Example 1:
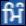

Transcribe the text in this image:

ਮਿੰ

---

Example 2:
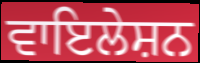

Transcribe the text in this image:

ਵਾਇਲੇਸ਼ਨ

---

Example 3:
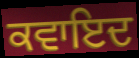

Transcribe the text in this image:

ਕਵਾਇਦ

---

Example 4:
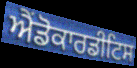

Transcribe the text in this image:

ਐਂਡੋਕਾਰਡੀਟਿਸ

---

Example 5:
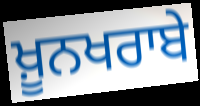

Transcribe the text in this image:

ਖ਼ੂਨਖਰਾਬੇ